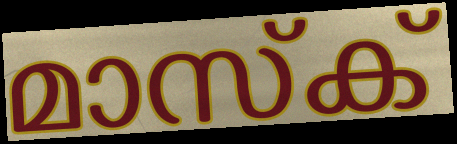
മാസ്‌ക്